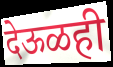
देऊळही